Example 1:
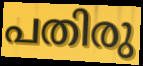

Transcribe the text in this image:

പതിരു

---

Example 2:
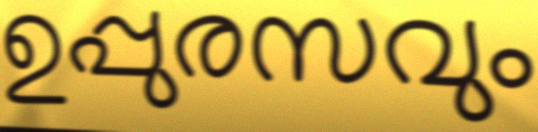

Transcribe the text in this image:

ഉപ്പുരസവും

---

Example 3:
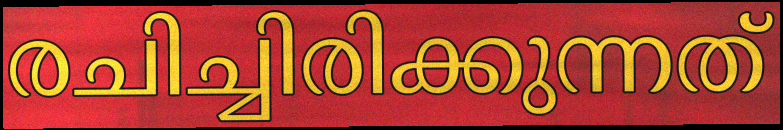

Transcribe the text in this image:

രചിച്ചിരിക്കുന്നത്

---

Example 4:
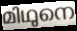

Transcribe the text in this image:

മിഥുനെ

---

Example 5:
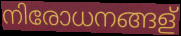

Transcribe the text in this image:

നിരോധനങ്ങള്